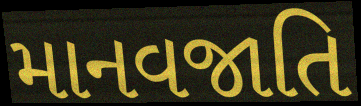
માનવજાતિ